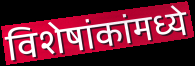
विशेषांकांमध्ये